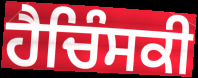
ਹੈਚਿੰਸਕੀ